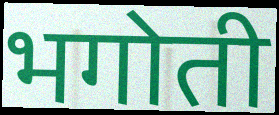
भगोती